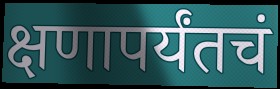
क्षणापर्यंतचं